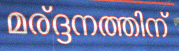
മര്ദ്ദനത്തിന്